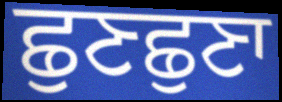
ਛੁਣਛੁਣਾ